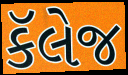
કૅલેજ